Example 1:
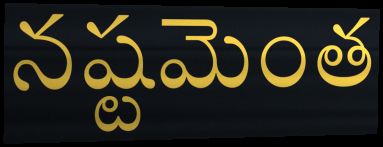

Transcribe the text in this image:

నష్టమెంత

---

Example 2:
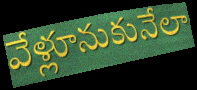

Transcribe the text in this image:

వేళ్లూనుకునేలా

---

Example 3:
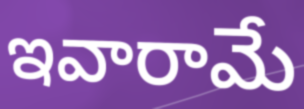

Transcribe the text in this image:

ఇవారామే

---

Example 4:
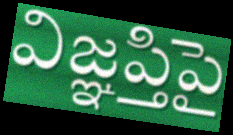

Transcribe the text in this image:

విజ్ఞప్తిపై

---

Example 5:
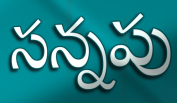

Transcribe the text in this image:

సన్నపు